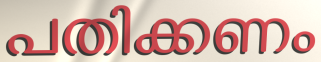
പതിക്കണം